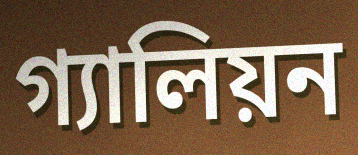
গ্যালিয়ন